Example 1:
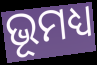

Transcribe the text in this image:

ଭୂମଧ୍ୟ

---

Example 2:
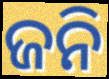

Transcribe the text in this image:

ଜନି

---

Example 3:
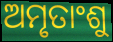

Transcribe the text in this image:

ଅମୃତାଂଶୁ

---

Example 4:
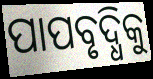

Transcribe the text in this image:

ପାପବୃଦ୍ଧିକୁ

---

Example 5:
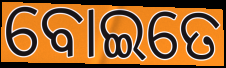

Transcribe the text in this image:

ବୋଇତେ